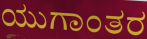
ಯುಗಾಂತರ